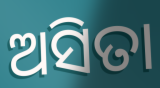
ଅସିତା